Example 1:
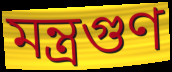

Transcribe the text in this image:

মন্ত্রগুণ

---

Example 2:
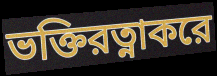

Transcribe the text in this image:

ভক্তিরত্নাকরে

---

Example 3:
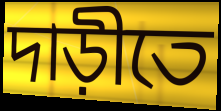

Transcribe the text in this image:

দাড়ীতে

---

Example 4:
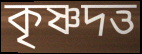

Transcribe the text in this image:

কৃষ্ণদত্ত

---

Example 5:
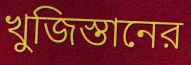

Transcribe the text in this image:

খুজিস্তানের